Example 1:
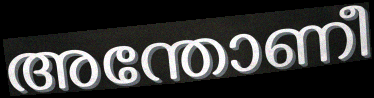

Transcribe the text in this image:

അന്തോണീ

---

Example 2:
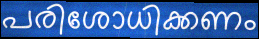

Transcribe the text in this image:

പരിശോധിക്കണം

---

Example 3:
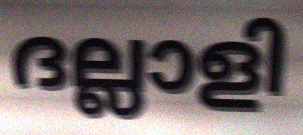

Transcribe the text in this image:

ദല്ലാളി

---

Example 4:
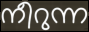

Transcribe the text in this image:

നീറുന്ന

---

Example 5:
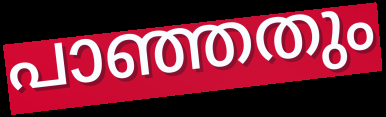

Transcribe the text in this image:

പാഞ്ഞതും